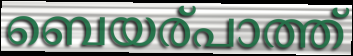
ബെയര്പാത്ത്